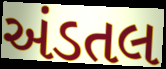
અંડતલ